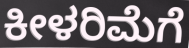
ಕೀಳರಿಮೆಗೆ